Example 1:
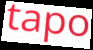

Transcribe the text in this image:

tapo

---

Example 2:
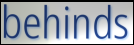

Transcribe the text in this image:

behinds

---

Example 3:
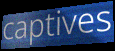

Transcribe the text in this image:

captives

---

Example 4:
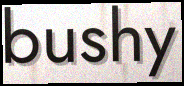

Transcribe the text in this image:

bushy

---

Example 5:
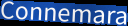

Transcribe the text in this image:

Connemara